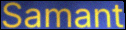
Samant